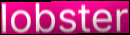
lobster